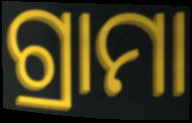
ଗ୍ରାମା